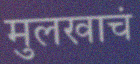
मुलखाचं